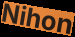
Nihon